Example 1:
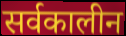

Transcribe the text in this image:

सर्वकालीन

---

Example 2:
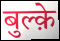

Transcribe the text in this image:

बुल्क़े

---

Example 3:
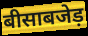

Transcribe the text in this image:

बीसाबजेड़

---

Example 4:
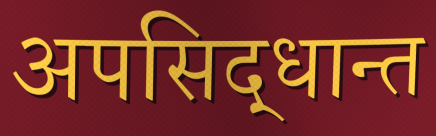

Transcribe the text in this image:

अपसिद्धान्त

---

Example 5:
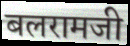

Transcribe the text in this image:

बलरामजी